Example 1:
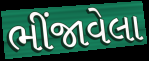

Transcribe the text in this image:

ભીંજાવેલા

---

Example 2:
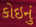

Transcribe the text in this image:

કોઇનું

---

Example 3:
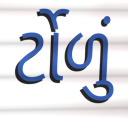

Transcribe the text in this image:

ર્ટોળું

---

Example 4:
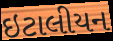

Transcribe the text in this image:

ઇટાલીયન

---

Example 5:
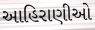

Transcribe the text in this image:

આહિરાણીઓ